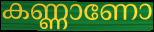
കണ്ണാണോ